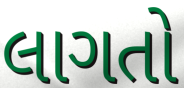
લાગતો